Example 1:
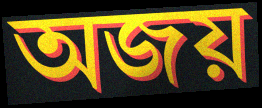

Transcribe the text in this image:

অজয়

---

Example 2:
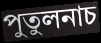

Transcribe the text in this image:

পুতুলনাচ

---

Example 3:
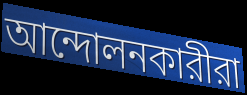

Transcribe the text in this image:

আন্দোলনকারীরা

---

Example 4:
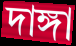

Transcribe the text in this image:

দাঙ্গা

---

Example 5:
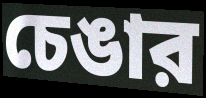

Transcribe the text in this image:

চেঙার